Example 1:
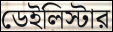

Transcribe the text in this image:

ডেইলিস্টার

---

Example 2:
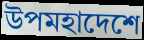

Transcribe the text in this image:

উপমহাদেশে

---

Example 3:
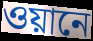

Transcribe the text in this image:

ওয়ানে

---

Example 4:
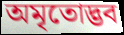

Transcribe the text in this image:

অমৃতোদ্ভব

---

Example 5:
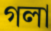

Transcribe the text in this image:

গলা